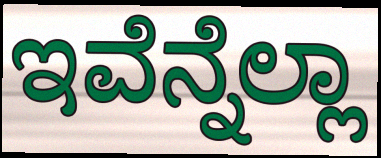
ಇವೆನ್ನೆಲ್ಲಾ